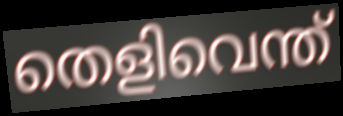
തെളിവെന്ത്